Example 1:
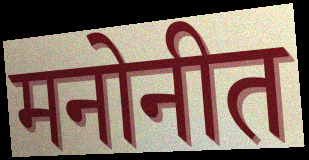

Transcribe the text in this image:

मनोनीत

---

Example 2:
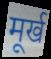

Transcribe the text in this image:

मूर्ख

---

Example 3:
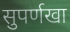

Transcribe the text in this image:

सुपर्णखा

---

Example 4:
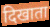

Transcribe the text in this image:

दिखाता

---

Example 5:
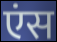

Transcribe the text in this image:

एंस